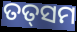
ତତ୍‍ସମ